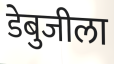
डेबुजीला